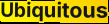
Ubiquitous